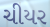
ચીયર